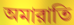
অমারাতি